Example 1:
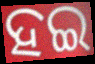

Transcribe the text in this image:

ହଇ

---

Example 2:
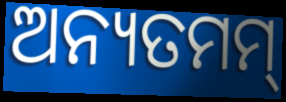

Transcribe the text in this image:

ଅନ୍ୟତମମ୍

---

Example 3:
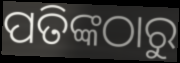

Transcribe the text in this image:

ପତିଙ୍କଠାରୁ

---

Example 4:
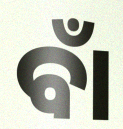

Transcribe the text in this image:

ବାଁ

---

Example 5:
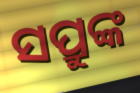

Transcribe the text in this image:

ସପ୍ରୁଙ୍କ